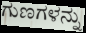
ಗುಣಗಳನ್ನು